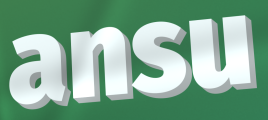
ansu